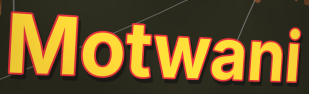
Motwani